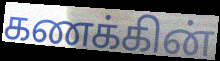
கணக்கின்